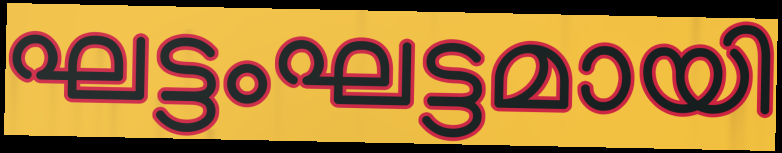
ഘട്ടംഘട്ടമായി